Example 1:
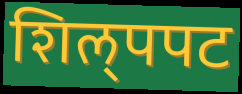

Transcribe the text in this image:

शिल्पपट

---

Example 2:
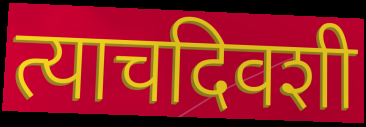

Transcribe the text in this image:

त्याचदिवशी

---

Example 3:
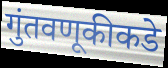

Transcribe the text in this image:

गुंतवणूकीकडे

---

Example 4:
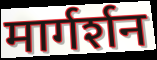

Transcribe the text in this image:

मार्गर्शन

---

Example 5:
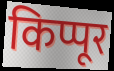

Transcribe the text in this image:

किप्पूर